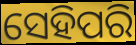
ସେହିପରି